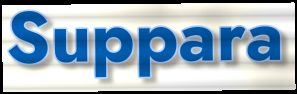
Suppara